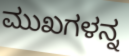
ಮುಖಗಳನ್ನ